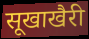
सूखाखैरी